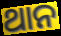
ଥାନ